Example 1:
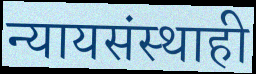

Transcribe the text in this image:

न्यायसंस्थाही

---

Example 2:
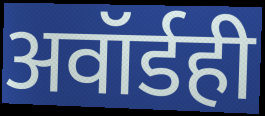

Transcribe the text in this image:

अवॉर्डही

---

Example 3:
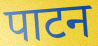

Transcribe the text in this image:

पाटन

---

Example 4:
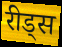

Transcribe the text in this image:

रीड्स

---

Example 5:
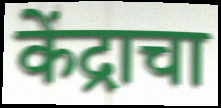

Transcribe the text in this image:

केंद्राचा